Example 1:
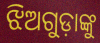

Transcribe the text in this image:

ଝିଅଗୁଡ଼ାଙ୍କୁ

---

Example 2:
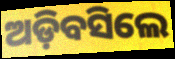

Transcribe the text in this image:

ଅଡ଼ିବସିଲେ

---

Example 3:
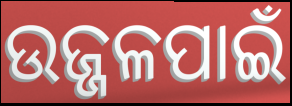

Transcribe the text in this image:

ଉଜ୍ଜଳପାଇଁ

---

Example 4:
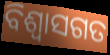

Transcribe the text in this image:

ବିଶ୍ଵାସଗତ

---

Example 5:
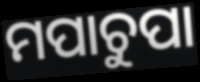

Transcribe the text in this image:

ମପାଚୁପା